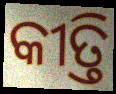
କୀତ୍ତି